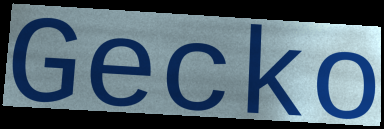
Gecko